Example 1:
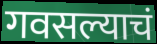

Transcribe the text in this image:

गवसल्याचं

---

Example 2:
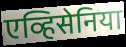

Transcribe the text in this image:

एव्हिसेनिया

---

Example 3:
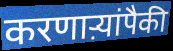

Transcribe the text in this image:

करणाऱ्‍यांपैकी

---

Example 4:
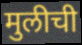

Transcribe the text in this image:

मुलीची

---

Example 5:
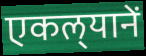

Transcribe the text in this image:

एकल्यानें